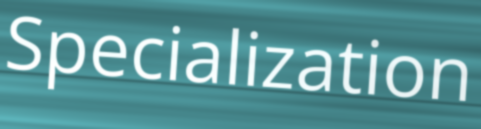
Specialization